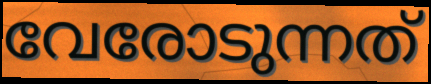
വേരോടുന്നത്